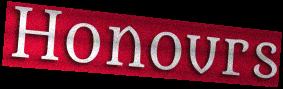
Honours